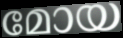
മോയ